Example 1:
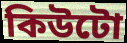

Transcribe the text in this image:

কিউটো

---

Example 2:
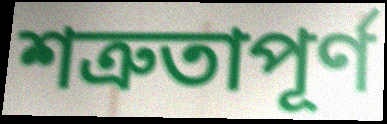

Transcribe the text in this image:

শত্রুতাপূর্ণ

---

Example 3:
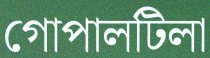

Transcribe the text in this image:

গোপালটিলা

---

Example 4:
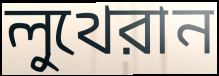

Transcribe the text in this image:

লুথেরান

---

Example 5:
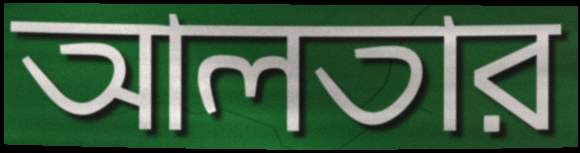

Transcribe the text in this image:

আলতার